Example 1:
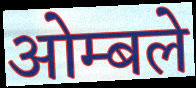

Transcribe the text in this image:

ओम्बले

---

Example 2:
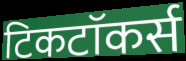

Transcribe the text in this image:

टिकटॉकर्स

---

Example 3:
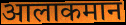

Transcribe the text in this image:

आलाकमान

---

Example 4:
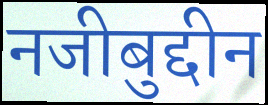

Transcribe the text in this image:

नजीबुद्दीन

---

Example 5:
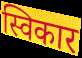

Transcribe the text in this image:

स्विकार